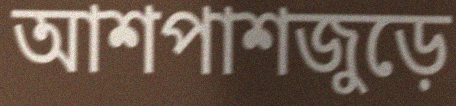
আশপাশজুড়ে